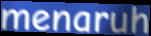
menaruh